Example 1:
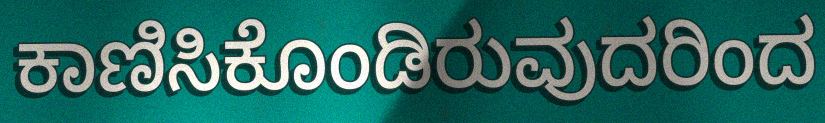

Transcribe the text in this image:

ಕಾಣಿಸಿಕೊಂಡಿರುವುದರಿಂದ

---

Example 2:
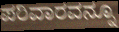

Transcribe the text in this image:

ಪರಿವಾರವನ್ನೂ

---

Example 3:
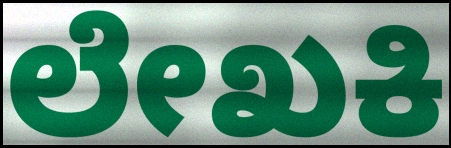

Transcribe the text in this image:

ಲೇಖಕಿ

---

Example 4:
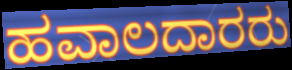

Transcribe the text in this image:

ಹವಾಲದಾರರು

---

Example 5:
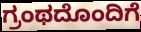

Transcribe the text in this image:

ಗ್ರಂಥದೊಂದಿಗೆ